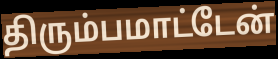
திரும்பமாட்டேன்